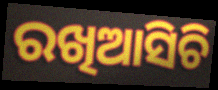
ରଖିଆସିଚି